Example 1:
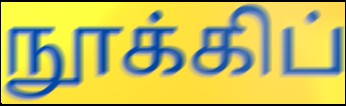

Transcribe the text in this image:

நூக்கிப்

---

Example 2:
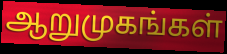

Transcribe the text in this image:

ஆறுமுகங்கள்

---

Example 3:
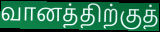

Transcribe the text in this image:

வானத்திற்குத்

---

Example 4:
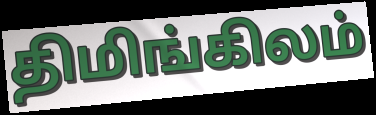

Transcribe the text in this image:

திமிங்கிலம்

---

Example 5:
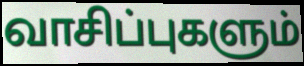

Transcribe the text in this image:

வாசிப்புகளும்